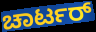
ಚಾರ್ಟರ್